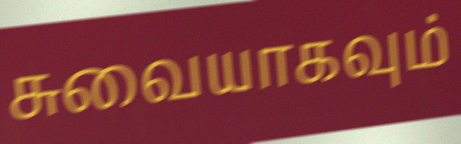
சுவையாகவும்